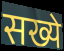
सख्ये